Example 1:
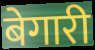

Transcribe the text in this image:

बेगारी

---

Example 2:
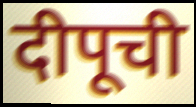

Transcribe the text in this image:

दीपूची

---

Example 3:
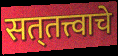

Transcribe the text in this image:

सत्‌तत्त्वाचे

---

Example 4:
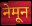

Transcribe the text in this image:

नेमून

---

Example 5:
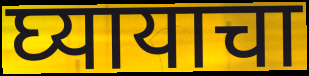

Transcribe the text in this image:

घ्यायाचा